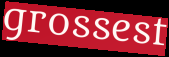
grossest